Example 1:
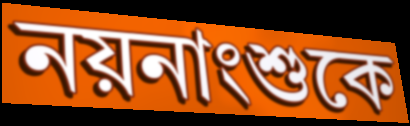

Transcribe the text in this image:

নয়নাংশুকে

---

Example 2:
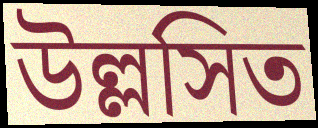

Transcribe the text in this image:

উল্লসিত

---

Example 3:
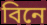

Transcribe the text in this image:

বিনে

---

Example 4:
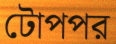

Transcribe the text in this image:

টোপপর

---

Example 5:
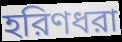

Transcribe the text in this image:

হরিণধরা